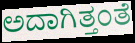
ಅದಾಗಿತ್ತಂತೆ